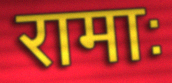
रामाः